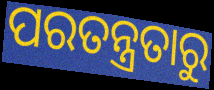
ପରତନ୍ତ୍ରତାରୁ